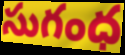
సుగంధ